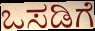
ಒಸಡಿಗೆ